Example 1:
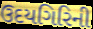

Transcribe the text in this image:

ઉદયગિરિની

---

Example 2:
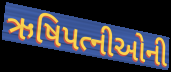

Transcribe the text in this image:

ઋષિપત્નીઓની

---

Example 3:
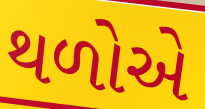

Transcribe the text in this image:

થળોએ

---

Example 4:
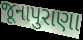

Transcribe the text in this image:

જૂનાપુરાણા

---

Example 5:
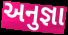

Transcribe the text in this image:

અનુજ્ઞા